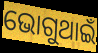
ଭୋଗୁଥାଇଁ